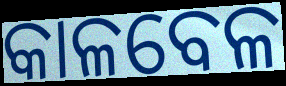
କାଳବେଳ